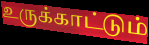
உருக்காட்டும்